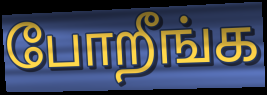
போறீங்க